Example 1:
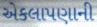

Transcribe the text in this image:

એકલાપણાની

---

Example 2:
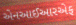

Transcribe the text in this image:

એનઆઈઆરએફ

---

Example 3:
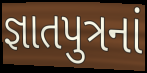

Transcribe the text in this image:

જ્ઞાતપુત્રનાં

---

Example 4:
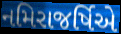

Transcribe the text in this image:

નમિરાજર્ષિએ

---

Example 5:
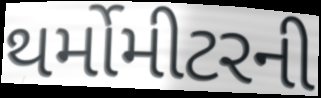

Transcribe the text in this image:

થર્મોમીટરની